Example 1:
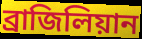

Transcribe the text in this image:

ব্রাজিলিয়ান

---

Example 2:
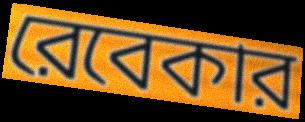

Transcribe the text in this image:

রেবেকার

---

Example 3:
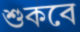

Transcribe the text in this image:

শুকবে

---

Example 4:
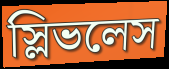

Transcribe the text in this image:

স্লিভলেস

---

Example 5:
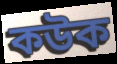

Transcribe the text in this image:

কউক